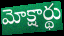
మోక్షార్థు